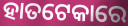
ହାତଟେକାରେ